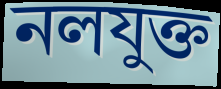
নলযুক্ত